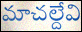
మాచల్దేవి